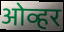
ओव्हर